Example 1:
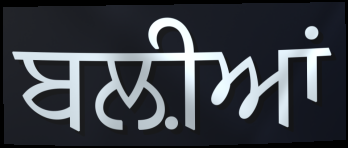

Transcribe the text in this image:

ਬਲ਼ੀਆਂ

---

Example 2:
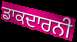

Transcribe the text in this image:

ਡਾਕਦਾਰਨੀ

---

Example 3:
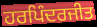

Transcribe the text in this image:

ਹਰਪਿੰਦਰਜੀਤ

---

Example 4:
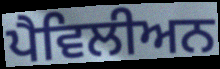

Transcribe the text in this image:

ਪੈਵਿਲੀਅਨ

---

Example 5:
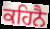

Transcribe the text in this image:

ਕਹਿਨੈ